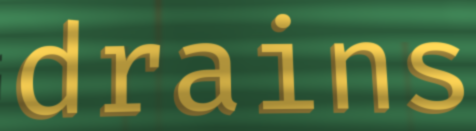
drains